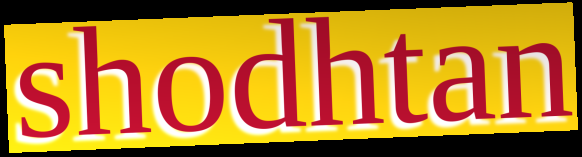
shodhtan